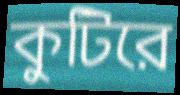
কুটিরে